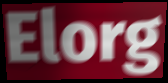
Elorg